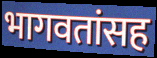
भागवतांसह